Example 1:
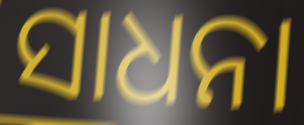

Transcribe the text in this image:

ସାଧନା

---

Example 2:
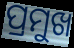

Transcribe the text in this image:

ପ୍ରମୁଖ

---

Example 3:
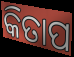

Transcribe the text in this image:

କିତାପ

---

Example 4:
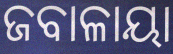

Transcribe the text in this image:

ଜବାଳାୟା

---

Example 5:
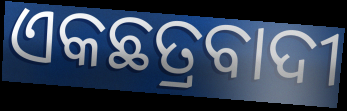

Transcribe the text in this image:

ଏକଛତ୍ରବାଦୀ